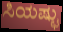
ಸಿಯಷ್ಟು